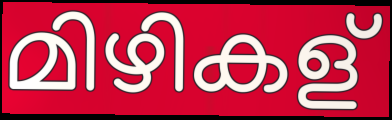
മിഴികള്